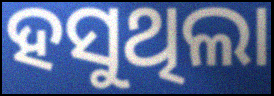
ହସୁଥିଲା